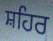
ਸ਼ਹਿਰ